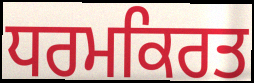
ਧਰਮਕਿਰਤ